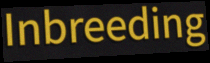
Inbreeding